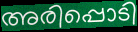
അരിപ്പൊടി